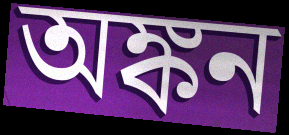
অঙ্কন